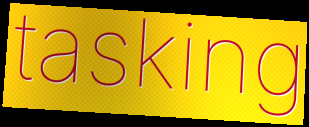
tasking